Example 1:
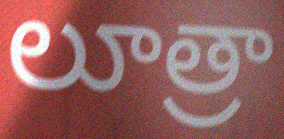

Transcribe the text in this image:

లూత్రా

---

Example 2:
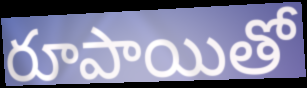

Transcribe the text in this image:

రూపాయితో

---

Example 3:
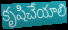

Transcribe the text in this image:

కృషిచేయాలి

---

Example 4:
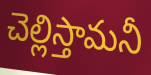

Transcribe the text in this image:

చెల్లిస్తామనీ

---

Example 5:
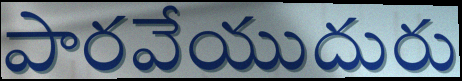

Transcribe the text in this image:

పారవేయుదురు